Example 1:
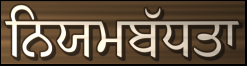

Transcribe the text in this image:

ਨਿਯਮਬੱਧਤਾ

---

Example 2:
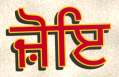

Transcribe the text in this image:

ਜ਼ੋਇ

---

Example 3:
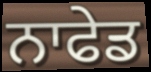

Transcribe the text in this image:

ਨਾਫੇਡ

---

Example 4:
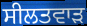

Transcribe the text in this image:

ਸੀਲਤਵਾੜ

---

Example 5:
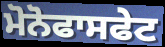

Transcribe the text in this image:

ਮੋਨੋਫਾਸਫੇਟ